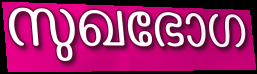
സുഖഭോഗ